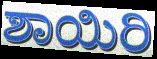
ಶಾಯಿರಿ